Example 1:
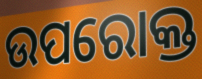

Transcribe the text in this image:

ଉପରୋକ୍ତ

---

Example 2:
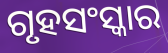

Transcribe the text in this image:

ଗୃହସଂସ୍କାର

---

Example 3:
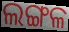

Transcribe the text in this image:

ଲଙ୍ଗଳ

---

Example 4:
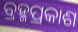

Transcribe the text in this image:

ବ୍ରହ୍ମପ୍ରକାଶ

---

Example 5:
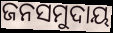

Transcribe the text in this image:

ଜନସମୁଦାୟ